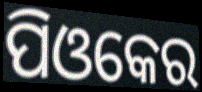
ପିଓକେର